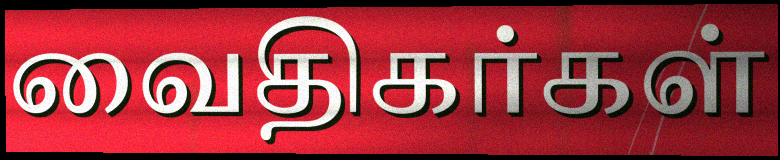
வைதிகர்கள்